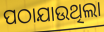
ପଠାଯାଉଥିଲା